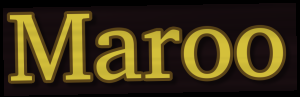
Maroo